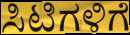
ಸಿಟಿಗಳಿಗೆ